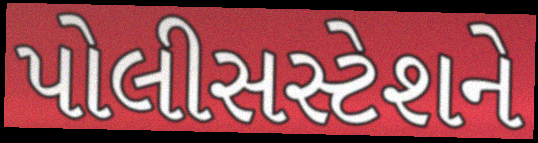
પોલીસસ્ટેશને